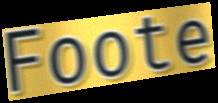
Foote